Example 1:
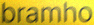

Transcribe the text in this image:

bramho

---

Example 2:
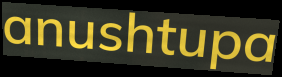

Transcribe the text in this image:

anushtupa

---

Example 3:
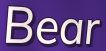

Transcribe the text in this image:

Bear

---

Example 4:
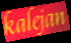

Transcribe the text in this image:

kalejan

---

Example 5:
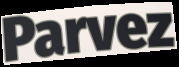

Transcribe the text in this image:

Parvez